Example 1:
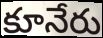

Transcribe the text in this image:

కూనేరు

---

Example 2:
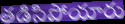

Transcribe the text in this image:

తడిసిపోయారు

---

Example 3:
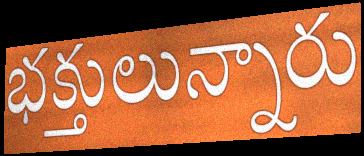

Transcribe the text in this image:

భక్తులున్నారు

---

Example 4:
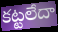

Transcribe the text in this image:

కట్టలేదా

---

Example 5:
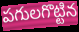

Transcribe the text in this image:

పగులగొట్టిన